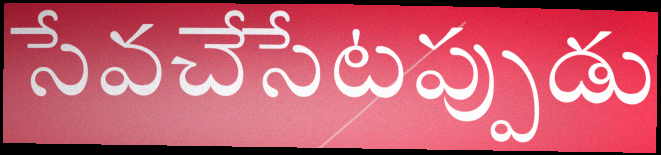
సేవచేసేటప్పుడు